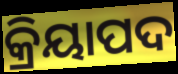
କ୍ରିୟାପଦ